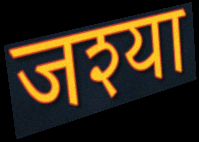
जश्या